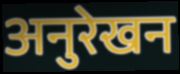
अनुरेखन